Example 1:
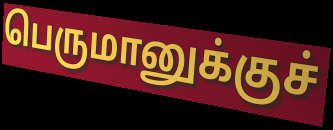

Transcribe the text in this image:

பெருமானுக்குச்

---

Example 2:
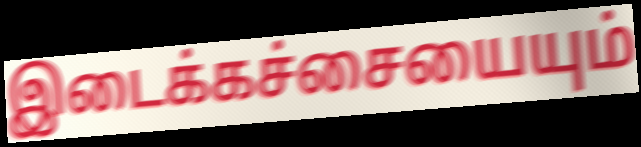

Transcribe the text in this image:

இடைக்கச்சையையும்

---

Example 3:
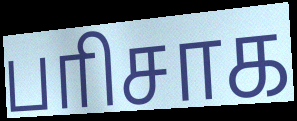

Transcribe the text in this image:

பரிசாக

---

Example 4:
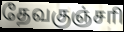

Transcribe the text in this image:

தேவகுஞ்சரி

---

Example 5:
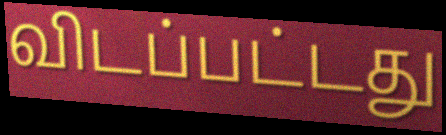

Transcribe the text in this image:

விடப்பட்டது